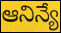
ఆనిన్యే